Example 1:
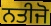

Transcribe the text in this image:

ਨਤੀਜੋ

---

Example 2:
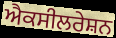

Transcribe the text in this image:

ਐਕਸੀਲਰੇਸ਼ਨ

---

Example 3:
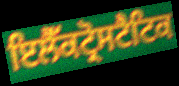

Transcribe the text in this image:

ਇਲੈੱਕਟ੍ਰੋਸਟੈਟਿਕ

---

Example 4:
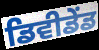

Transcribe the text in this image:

ਡਿਵੀਡੇਂਡ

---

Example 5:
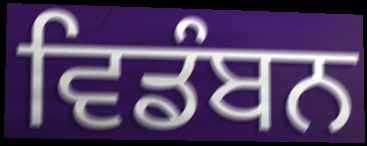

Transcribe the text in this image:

ਵਿਡੰਬਨ